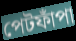
পেটফাঁপা